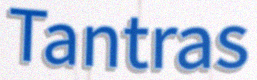
Tantras